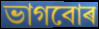
ভাগবোৰ